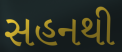
સહનથી